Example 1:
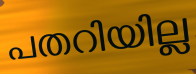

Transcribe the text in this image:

പതറിയില്ല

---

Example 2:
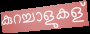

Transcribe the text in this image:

കുറച്ചാളുകള്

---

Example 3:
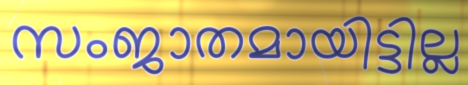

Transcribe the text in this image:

സംജാതമായിട്ടില്ല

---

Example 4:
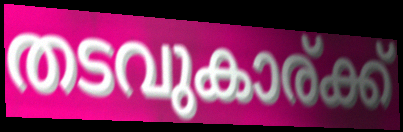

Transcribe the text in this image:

തടവുകാര്ക്ക്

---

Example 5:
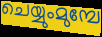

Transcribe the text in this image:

ചെയ്യുംമുമ്പേ